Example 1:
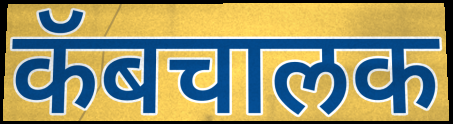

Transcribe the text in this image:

कॅबचालक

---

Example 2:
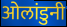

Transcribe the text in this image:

ओलांडुनी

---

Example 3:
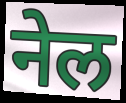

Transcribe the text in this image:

नेल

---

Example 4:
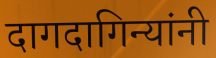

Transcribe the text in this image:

दागदागिन्यांनी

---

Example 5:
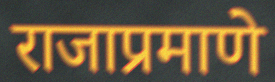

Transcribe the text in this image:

राजाप्रमाणे